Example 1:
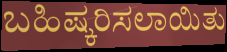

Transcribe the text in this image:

ಬಹಿಷ್ಕರಿಸಲಾಯಿತು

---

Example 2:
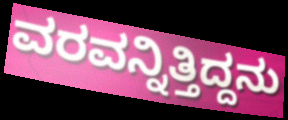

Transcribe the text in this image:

ವರವನ್ನಿತ್ತಿದ್ದನು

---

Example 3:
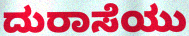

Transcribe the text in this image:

ದುರಾಸೆಯು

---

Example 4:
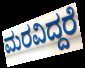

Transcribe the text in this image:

ಮರವಿದ್ದರೆ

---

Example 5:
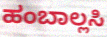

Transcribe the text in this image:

ಹಂಬಾಲ್ಲಸಿ